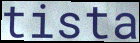
tista